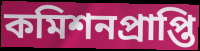
কমিশনপ্রাপ্তি